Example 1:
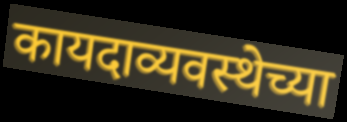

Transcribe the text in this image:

कायदाव्यवस्थेच्या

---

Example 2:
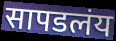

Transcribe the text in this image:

सापडलंय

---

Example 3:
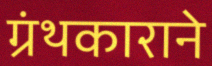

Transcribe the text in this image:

ग्रंथकाराने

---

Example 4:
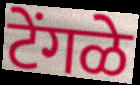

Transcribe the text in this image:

टेंगळे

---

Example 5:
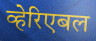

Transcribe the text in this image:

व्हेरिएबल